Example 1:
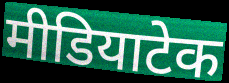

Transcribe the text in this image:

मीडियाटेक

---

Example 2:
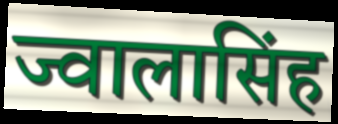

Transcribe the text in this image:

ज्वालासिंह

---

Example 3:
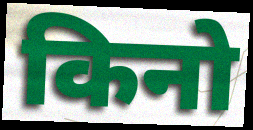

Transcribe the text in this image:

किनो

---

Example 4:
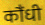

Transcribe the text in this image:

कौंधी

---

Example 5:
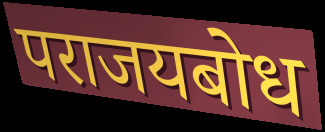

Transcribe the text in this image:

पराजयबोध